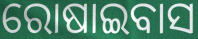
ରୋଷାଇବାସ